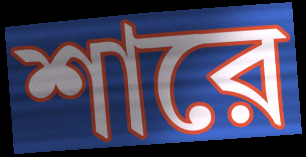
শারে